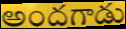
అందగాడు